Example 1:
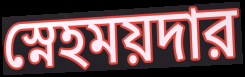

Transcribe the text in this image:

স্নেহময়দার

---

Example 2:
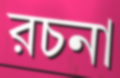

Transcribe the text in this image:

রচনা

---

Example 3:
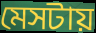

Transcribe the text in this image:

মেসটায়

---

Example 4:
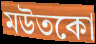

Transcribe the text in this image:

মউতকো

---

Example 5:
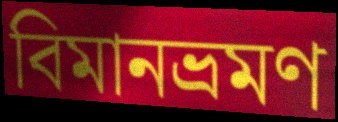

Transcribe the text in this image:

বিমানভ্রমণ